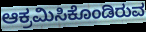
ಆಕ್ರಮಿಸಿಕೊಂಡಿರುವ